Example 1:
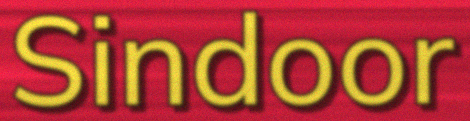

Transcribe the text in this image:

Sindoor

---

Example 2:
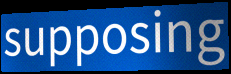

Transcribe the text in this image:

supposing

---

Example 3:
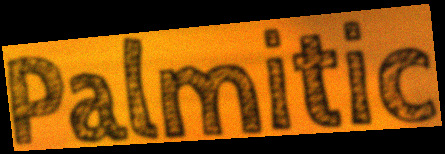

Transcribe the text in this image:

Palmitic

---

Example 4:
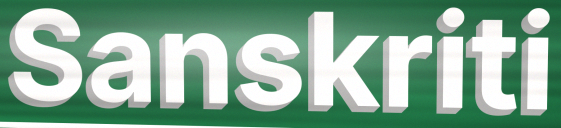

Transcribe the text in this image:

Sanskriti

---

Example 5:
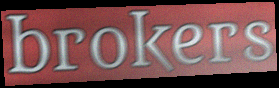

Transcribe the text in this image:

brokers